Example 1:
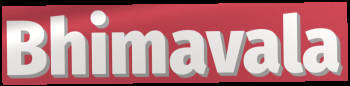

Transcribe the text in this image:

Bhimavala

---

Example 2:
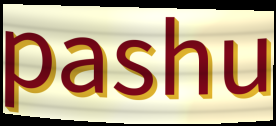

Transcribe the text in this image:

pashu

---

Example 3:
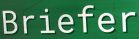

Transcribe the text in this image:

Briefer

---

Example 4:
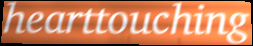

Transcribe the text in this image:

hearttouching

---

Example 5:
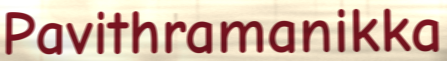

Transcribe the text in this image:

Pavithramanikka